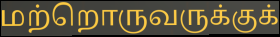
மற்றொருவருக்குக்